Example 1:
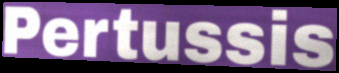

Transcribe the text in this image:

Pertussis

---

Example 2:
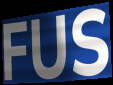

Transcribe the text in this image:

FUS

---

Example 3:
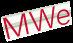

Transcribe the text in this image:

MWe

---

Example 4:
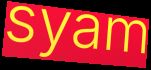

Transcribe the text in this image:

syam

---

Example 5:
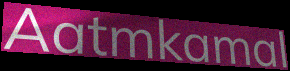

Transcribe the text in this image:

Aatmkamal